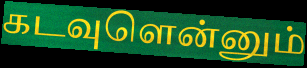
கடவுளென்னும்